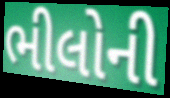
ભીલોની